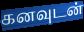
கனவுடன்